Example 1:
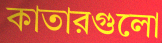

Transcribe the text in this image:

কাতারগুলো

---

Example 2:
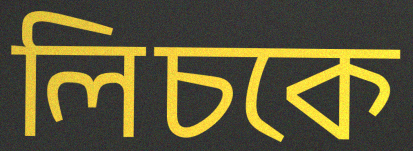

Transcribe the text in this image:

লিচকে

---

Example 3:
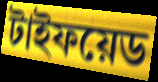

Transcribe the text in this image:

টাইফয়েড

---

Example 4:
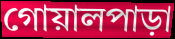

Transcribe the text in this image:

গোয়ালপাড়া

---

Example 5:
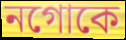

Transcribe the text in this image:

নগোকে